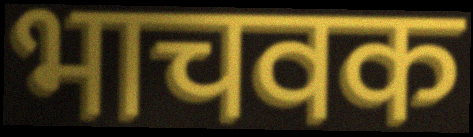
भाचवक